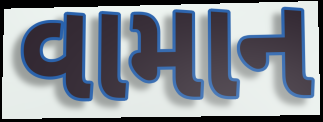
વામાન